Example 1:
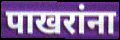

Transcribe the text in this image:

पाखरांना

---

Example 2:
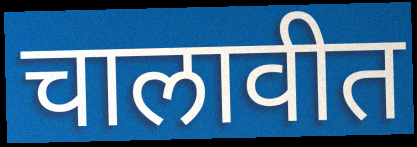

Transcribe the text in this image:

चालावीत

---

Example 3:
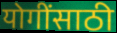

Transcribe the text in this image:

योगींसाठी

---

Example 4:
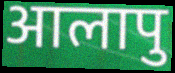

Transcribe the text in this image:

आलापु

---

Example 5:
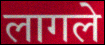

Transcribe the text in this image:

लागले